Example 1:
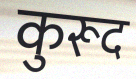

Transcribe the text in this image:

कुरूद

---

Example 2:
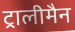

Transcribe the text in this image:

ट्रालीमैन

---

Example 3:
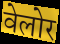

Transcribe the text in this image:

वेलोर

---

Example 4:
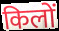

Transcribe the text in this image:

किलों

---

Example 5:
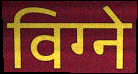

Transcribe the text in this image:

विग्ने